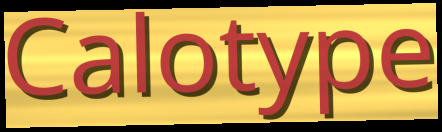
Calotype